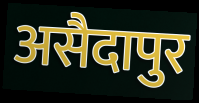
असैदापुर